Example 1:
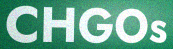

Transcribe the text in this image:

CHGOs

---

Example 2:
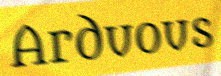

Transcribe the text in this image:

Arduous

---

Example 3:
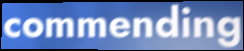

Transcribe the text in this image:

commending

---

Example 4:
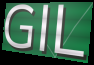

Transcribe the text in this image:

GIL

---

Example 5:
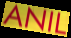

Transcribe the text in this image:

ANIL